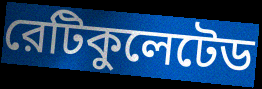
রেটিকুলেটেড